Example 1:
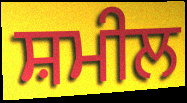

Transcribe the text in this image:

ਸ਼ਮੀਲ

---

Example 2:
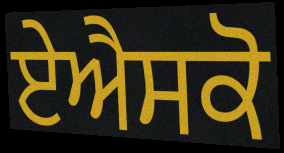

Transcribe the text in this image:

ਏਐਸਕੋ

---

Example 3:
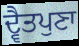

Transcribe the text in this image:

ਦ੍ਵੈਤਪੁਣਾ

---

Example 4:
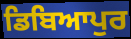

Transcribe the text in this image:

ਡਿਬਿਆਪੁਰ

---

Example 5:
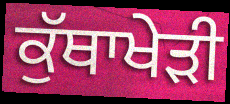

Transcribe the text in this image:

ਕੁੱਥਾਖੇੜੀ